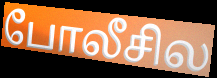
போலீசில